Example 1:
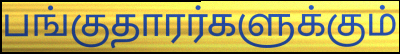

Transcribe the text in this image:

பங்குதாரர்களுக்கும்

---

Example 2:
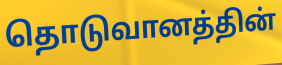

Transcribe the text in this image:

தொடுவானத்தின்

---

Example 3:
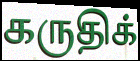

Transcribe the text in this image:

கருதிக்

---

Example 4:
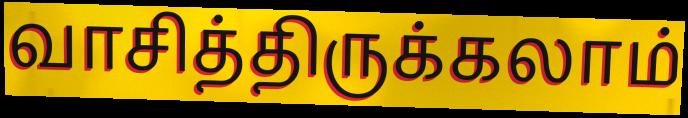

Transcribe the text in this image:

வாசித்திருக்கலாம்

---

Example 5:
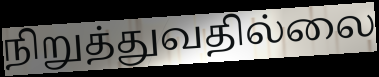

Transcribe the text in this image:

நிறுத்துவதில்லை